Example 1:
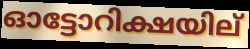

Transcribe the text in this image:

ഓട്ടോറിക്ഷയില്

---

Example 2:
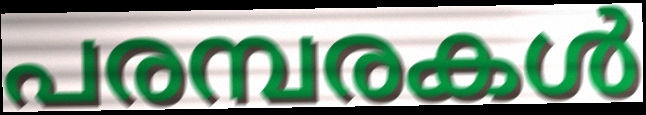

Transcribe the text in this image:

പരമ്പരകൾ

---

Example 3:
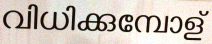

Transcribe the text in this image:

വിധിക്കുമ്പോള്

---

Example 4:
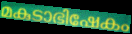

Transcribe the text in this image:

മകുടാഭിഷേകം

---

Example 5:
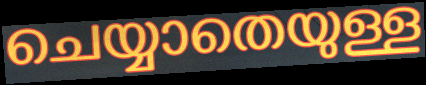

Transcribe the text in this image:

ചെയ്യാതെയുള്ള